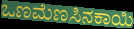
ಒಣಮೆಣಸಿನಕಾಯಿ